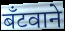
बँटवाने